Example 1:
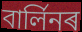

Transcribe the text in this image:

বাৰ্লিনৰ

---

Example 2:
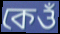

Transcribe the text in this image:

কেওঁ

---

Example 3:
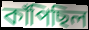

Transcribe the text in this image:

কাঁপিছিল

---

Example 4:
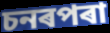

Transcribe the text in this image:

চনৰপৰা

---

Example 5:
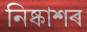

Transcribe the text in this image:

নিষ্কাশৰ